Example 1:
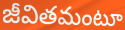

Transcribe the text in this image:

జీవితమంటూ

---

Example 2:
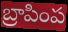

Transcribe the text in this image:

బ్రాపింప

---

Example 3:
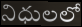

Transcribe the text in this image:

నిధులలో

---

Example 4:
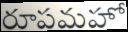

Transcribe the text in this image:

రూపమహో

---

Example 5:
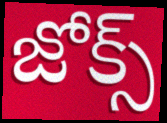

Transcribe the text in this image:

జోక్స్